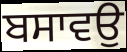
ਬਸਾਵਉ